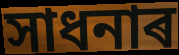
সাধনাৰ